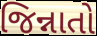
જિન્નાતો